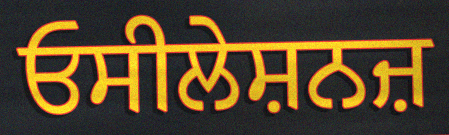
ਓਸੀਲੇਸ਼ਨਜ਼